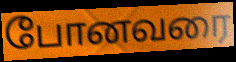
போனவரை